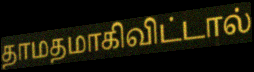
தாமதமாகிவிட்டால்